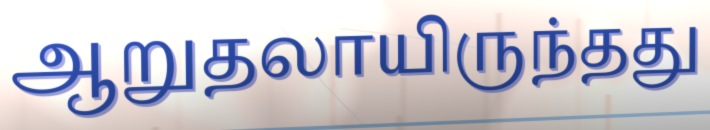
ஆறுதலாயிருந்தது